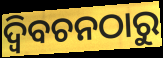
ଦ୍ବିବଚନଠାରୁ